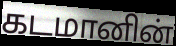
கடமானின்